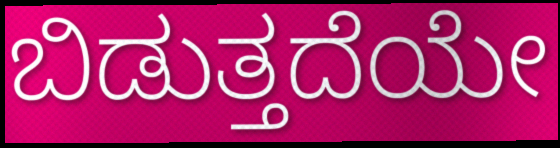
ಬಿಡುತ್ತದೆಯೇ